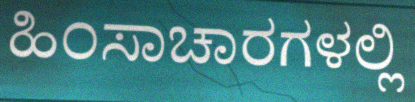
ಹಿಂಸಾಚಾರಗಳಲ್ಲಿ